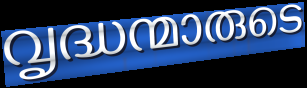
വൃദ്ധന്മാരുടെ